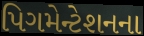
પિગમેન્ટેશનના